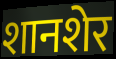
शानशेर